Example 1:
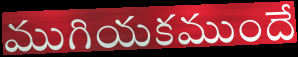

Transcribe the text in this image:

ముగియకముందే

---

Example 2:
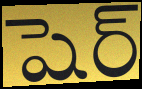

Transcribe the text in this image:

షెర్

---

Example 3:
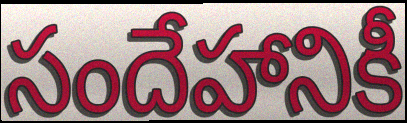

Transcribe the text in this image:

సందేహానికీ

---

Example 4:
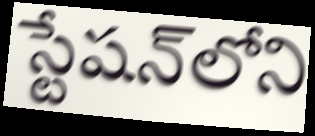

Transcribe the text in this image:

స్టేషన్‌లోని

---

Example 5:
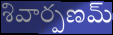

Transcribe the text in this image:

శివార్పణమ్